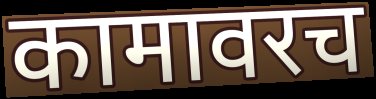
कामावरच